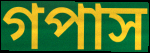
গপাস